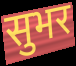
सुभर